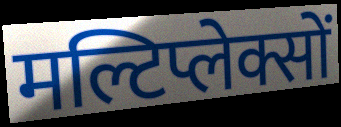
मल्टिप्लेक्सों